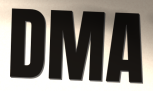
DMA